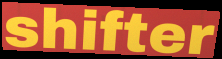
shifter